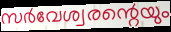
സർവേശ്വരന്റെയും